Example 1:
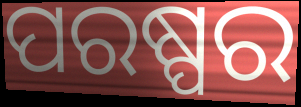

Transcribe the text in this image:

ପରଷ୍ପର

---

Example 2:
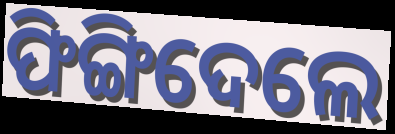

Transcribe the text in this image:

ଫିଙ୍ଗିଦେଲେ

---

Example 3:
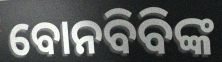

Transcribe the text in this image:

ବୋନବିବିଙ୍କ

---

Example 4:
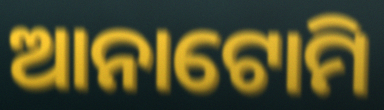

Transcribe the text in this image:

ଆନାଟୋମି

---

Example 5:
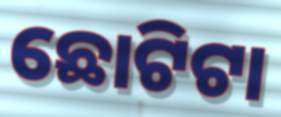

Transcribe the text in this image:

ଛୋଟିଟା